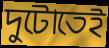
দুটোতেই